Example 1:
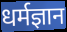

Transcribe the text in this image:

धर्मज्ञान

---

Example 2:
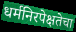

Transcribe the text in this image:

धर्मनिरपेक्षतेचा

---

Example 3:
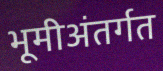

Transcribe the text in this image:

भूमीअंतर्गत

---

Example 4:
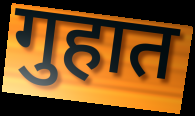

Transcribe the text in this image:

गुहात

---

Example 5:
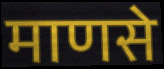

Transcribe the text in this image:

माणसे